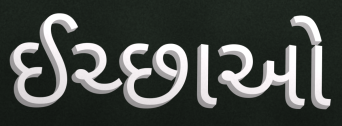
ઈચ્છાઓ